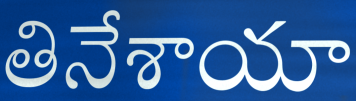
తినేశాయా